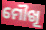
ମୌଖୂ